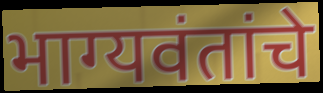
भाग्यवंतांचे